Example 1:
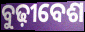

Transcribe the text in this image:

ବୁଢ଼ୀବେଶ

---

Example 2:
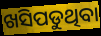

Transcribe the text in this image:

ଖସିପଡୁଥିବା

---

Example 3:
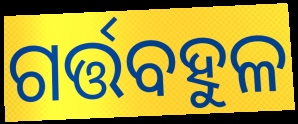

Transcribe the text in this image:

ଗର୍ତ୍ତବହୁଳ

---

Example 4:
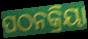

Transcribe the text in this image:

ପଠନକ୍ରିୟା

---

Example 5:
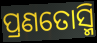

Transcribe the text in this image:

ପ୍ରଣତୋସ୍ମି